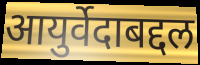
आयुर्वेदाबद्दल